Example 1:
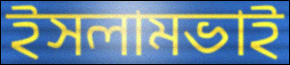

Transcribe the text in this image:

ইসলামভাই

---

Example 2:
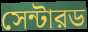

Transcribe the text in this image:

সেন্টারড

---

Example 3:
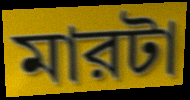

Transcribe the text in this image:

মারটা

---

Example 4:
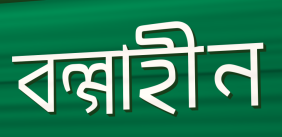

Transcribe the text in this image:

বল্গাহীন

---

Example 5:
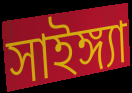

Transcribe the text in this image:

সাইঙ্গ্যা